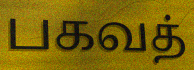
பகவத்